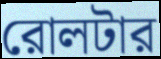
রোলটার